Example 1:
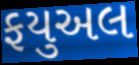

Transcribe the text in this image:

ફયુઅલ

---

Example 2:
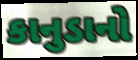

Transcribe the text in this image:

કાનુડાનો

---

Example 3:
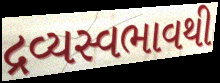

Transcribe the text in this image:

દ્રવ્યસ્વભાવથી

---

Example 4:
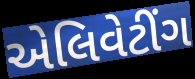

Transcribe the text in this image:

એલિવેટીંગ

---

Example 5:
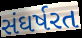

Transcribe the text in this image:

સંઘર્ષરત